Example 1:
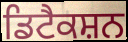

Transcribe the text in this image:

ਡਿਟੈਕਸ਼ਨ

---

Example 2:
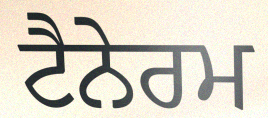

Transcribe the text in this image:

ਟੈਨੇਰਮ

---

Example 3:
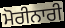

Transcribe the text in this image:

ਮੋਰੀਨਾਰੀ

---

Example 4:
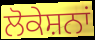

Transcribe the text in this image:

ਲੋਕੇਸ਼ਨਾਂ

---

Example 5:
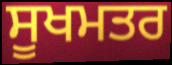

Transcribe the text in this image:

ਸੂਖਮਤਰ